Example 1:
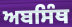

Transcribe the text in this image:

ਅਬਸਿੰਥ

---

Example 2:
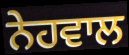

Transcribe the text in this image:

ਨੇਹਵਾਲ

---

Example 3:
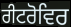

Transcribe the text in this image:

ਰੀਟਰੋਵਿਰ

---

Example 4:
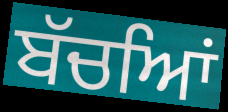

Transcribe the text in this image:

ਬੱਚਆਿਂ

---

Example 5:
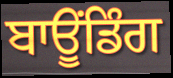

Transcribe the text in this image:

ਬਾਊਂਡਿੰਗ